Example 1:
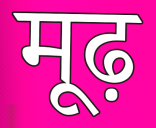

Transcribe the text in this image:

मूढ़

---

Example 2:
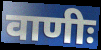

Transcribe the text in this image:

वाणीः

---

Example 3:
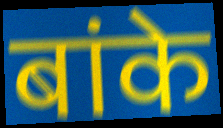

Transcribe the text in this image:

बांके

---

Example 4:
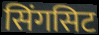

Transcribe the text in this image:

सिंगसिट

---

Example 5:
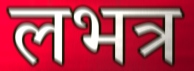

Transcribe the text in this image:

लभत्र